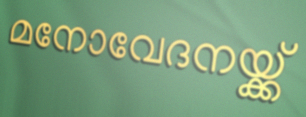
മനോവേദനയ്ക്ക്